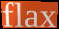
flax